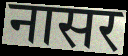
नासर